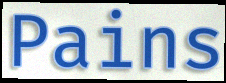
Pains